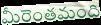
మీరెంతమంది